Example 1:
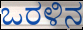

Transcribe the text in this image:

ಒರಳಿನ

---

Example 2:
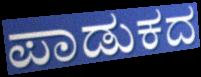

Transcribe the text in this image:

ಪಾಡುಕದ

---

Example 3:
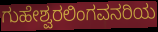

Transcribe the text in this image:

ಗುಹೇಶ್ವರಲಿಂಗವನರಿಯ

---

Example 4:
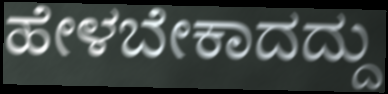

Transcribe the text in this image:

ಹೇಳಬೇಕಾದದ್ದು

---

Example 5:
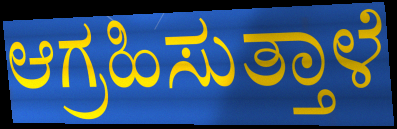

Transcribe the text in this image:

ಆಗ್ರಹಿಸುತ್ತಾಳೆ